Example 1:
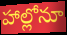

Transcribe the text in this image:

హాల్లోనూ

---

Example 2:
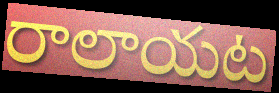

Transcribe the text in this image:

రాలాయట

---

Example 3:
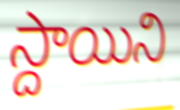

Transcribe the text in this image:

స్దాయిని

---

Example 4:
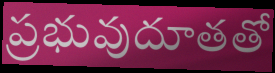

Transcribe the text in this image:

ప్రభువుదూతతో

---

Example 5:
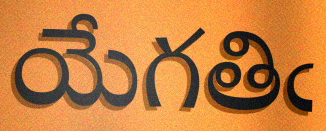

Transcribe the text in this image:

యేగతిఁ